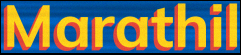
Marathil